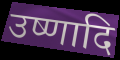
उष्णादि